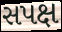
સપક્ષ